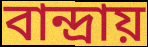
বান্দ্রায়